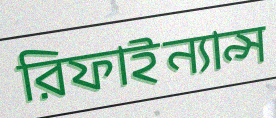
রিফাইন্যান্স